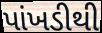
પાંખડીથી